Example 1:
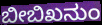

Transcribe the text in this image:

ಬೀಬಿಖನುಂ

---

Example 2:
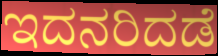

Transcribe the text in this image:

ಇದನರಿದಡೆ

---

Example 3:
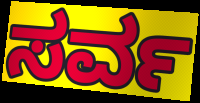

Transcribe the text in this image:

ಸರ್ವ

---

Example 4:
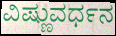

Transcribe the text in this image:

ವಿಷ್ಣುವರ್ಧನ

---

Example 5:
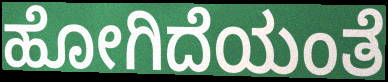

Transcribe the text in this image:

ಹೋಗಿದೆಯಂತೆ